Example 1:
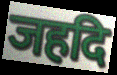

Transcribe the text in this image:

जहदि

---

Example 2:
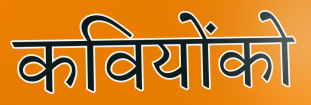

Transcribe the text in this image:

कवियोंको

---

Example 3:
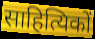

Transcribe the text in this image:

साहित्यिकों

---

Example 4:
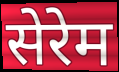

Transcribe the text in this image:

सेरेम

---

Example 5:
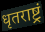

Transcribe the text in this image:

धृतराष्ट्रं